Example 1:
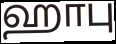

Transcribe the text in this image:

ஹாபு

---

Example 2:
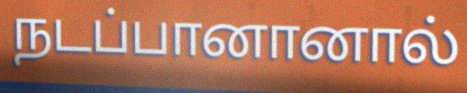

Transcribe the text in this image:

நடப்பானானால்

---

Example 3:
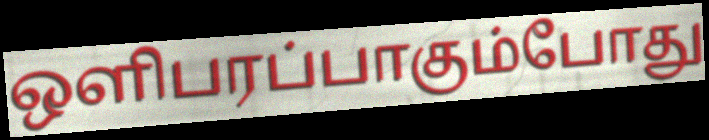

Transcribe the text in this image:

ஒளிபரப்பாகும்போது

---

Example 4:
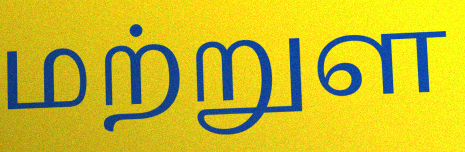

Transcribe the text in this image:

மற்றுள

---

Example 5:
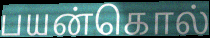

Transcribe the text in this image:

பயன்கொல்